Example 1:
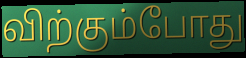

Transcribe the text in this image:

விற்கும்போது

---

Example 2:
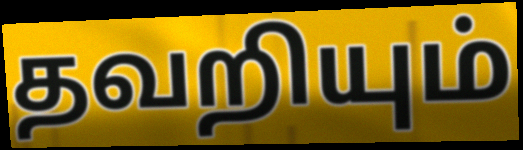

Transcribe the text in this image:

தவறியும்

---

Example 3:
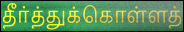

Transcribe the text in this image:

தீர்த்துக்கொள்ளத்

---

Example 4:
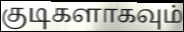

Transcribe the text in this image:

குடிகளாகவும்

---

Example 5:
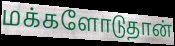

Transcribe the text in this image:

மக்களோடுதான்